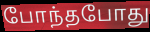
போந்தபோது